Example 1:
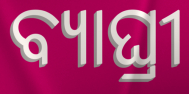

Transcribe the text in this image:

ବ୍ୟାଘ୍ରୀ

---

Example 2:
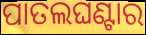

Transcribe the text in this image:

ପାତଲଘଣ୍ଟାର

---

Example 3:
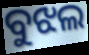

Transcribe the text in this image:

ବୁଝଲ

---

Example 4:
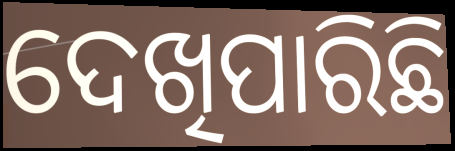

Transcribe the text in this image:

ଦେଖିପାରିଛି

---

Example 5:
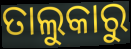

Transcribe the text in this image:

ତାଲୁକାରୁ